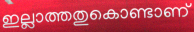
ഇല്ലാത്തതുകൊണ്ടാണ്